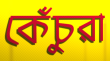
কেঁচুৱা